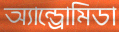
অ্যান্ড্রোমিডা